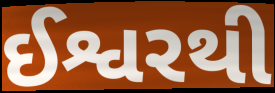
ઈશ્વરથી